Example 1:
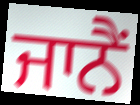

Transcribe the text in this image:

ਜਾਨੈਂ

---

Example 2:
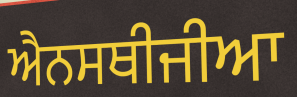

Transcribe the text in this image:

ਐਨਸਥੀਜੀਆ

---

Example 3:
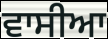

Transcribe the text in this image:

ਵਾਸੀਆ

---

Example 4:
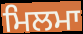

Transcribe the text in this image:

ਮਿਲਮਾ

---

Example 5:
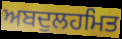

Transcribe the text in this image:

ਅਬਦੁਲਹਮਿਤ